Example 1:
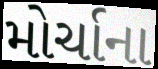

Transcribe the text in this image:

મોર્ચાના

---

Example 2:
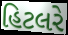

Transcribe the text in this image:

હિટલરે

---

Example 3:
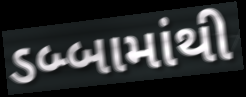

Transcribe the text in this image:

ડબ્બામાંથી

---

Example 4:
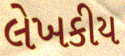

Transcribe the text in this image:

લેખકીય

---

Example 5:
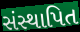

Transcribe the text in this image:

સંસ્થાપિત